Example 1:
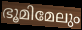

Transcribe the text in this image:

ഭൂമിമേലും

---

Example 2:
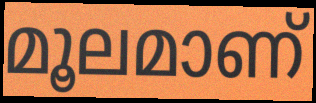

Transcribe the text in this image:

മൂലമാണ്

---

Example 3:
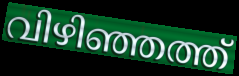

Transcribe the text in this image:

വിഴിഞ്ഞത്ത്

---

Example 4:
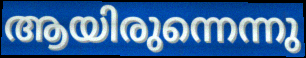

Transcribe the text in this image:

ആയിരുന്നെന്നു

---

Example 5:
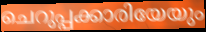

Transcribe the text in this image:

ചെറുപ്പക്കാരിയേയും